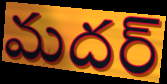
మదర్